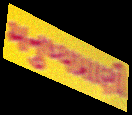
મનુષ્યપ્રાણી